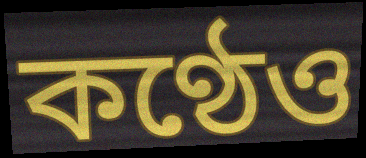
কণ্ঠেও